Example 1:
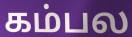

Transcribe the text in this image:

கம்பல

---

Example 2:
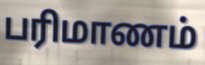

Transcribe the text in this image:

பரிமாணம்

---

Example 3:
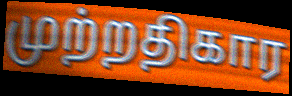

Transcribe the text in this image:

முற்றதிகார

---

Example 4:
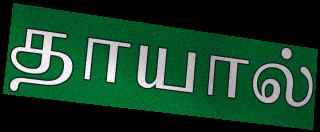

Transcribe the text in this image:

தாயால்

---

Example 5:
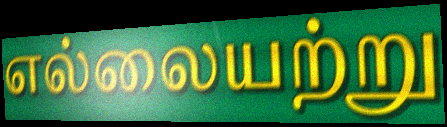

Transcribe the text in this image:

எல்லையற்று